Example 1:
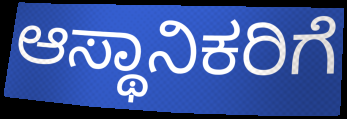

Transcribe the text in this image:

ಆಸ್ಥಾನಿಕರಿಗೆ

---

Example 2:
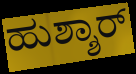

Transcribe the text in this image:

ಹುಶ್ಶಾರ್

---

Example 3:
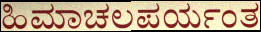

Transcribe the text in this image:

ಹಿಮಾಚಲಪರ್ಯಂತ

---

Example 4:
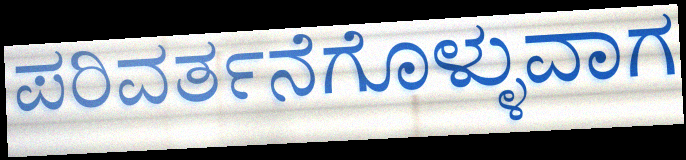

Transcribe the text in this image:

ಪರಿವರ್ತನೆಗೊಳ್ಳುವಾಗ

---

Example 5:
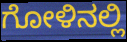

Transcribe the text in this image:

ಗೋಳಿನಲ್ಲಿ